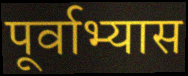
पूर्वाभ्यास